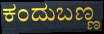
ಕಂದುಬಣ್ಣ